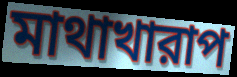
মাথাখারাপ